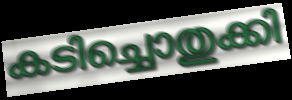
കടിച്ചൊതുക്കി